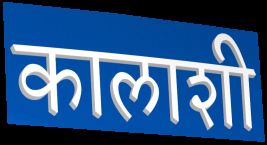
कालाशी